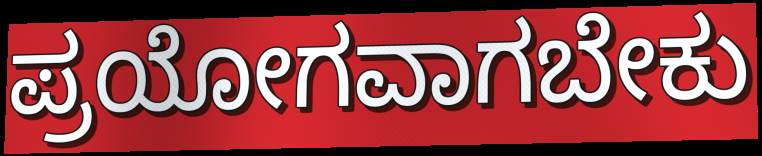
ಪ್ರಯೋಗವಾಗಬೇಕು